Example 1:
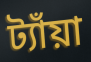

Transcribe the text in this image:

ট্যাঁয়া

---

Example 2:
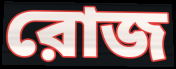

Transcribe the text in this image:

রোজ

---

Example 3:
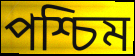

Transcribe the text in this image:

পশ্চিম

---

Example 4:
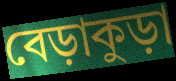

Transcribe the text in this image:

বেড়াকুড়া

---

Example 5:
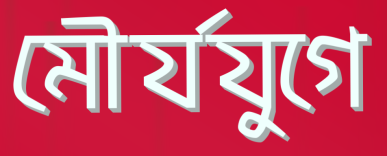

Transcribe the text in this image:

মৌর্যযুগে